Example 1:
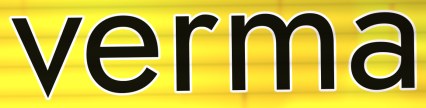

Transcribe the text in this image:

verma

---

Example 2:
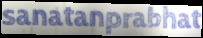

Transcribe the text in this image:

sanatanprabhat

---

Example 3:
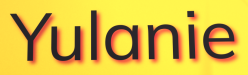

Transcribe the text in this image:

Yulanie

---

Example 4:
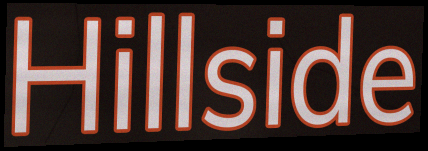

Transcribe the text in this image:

Hillside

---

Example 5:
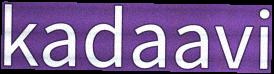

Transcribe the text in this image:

kadaavi